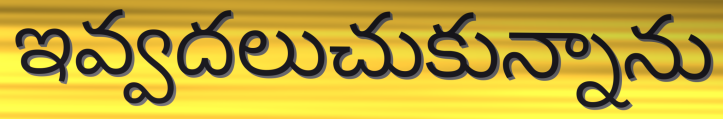
ఇవ్వదలుచుకున్నాను